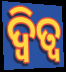
ଦ୍ୱିତ୍ୱ